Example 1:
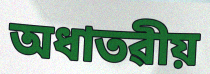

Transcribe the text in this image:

অধাতৱীয়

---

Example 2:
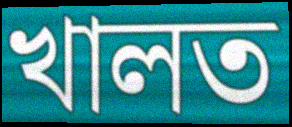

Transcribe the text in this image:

খালত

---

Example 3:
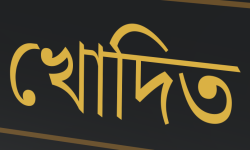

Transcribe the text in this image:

খোদিত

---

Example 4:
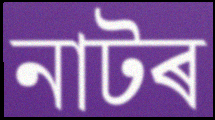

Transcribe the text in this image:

নাটৰ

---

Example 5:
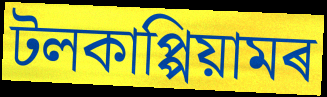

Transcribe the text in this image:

টলকাপ্পিয়ামৰ